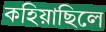
কহিয়াছিলে